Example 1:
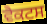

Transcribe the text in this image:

ਵੈਕਟਸ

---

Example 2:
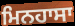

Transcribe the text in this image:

ਮਿਨਹਾਸਾ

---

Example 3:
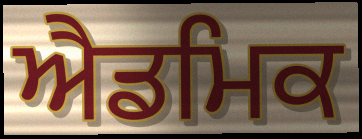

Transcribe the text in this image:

ਐਡਮਿਕ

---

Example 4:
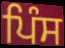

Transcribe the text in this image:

ਪਿੰਸ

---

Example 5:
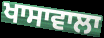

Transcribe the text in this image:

ਖਾਸਾਵਾਲਾ